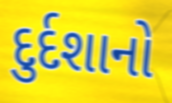
દુર્દશાનો